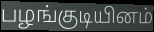
பழங்குடியினம்